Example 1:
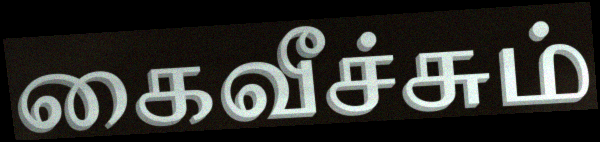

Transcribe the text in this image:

கைவீச்சும்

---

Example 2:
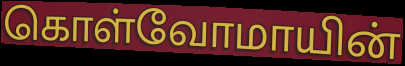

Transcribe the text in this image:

கொள்வோமாயின்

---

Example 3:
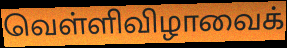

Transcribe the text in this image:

வெள்ளிவிழாவைக்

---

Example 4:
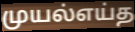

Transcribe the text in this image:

முயல்எய்த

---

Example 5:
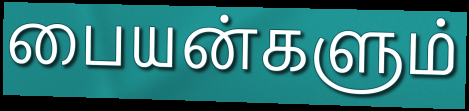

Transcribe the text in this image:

பையன்களும்